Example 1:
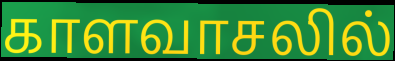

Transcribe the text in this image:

காளவாசலில்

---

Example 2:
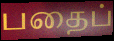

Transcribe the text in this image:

பதைப்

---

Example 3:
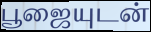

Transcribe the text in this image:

பூஜையுடன்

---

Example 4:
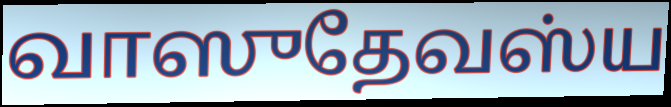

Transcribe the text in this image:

வாஸுதேவஸ்ய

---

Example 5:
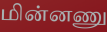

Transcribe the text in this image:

மின்னணு